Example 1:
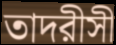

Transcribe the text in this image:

তাদরীসী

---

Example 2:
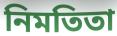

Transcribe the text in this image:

নিমতিতা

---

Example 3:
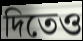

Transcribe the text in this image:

দিতেও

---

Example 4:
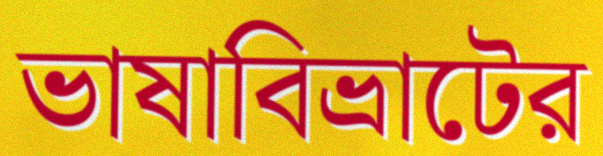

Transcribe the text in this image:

ভাষাবিভ্রাটের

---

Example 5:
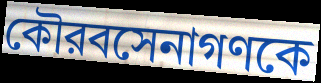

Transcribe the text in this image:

কৌরবসেনাগণকে